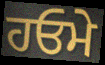
ਹਓਮੇ